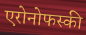
एरोनोफस्की